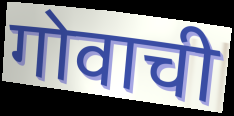
गोवाची